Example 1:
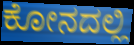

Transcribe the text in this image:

ಕೋನದಲ್ಲಿ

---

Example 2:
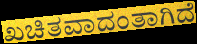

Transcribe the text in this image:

ಖಚಿತವಾದಂತಾಗಿದೆ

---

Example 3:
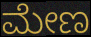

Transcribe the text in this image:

ಮೇಣ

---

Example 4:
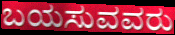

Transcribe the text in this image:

ಬಯಸುವವರು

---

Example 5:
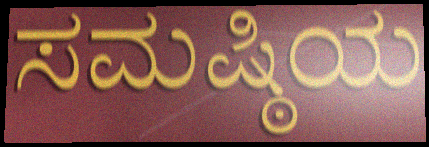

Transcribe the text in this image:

ಸಮಷ್ಠಿಯ